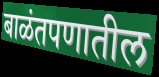
बाळंतपणातील